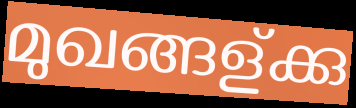
മുഖങ്ങള്ക്കു